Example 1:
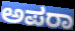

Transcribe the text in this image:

ಅಪರಾ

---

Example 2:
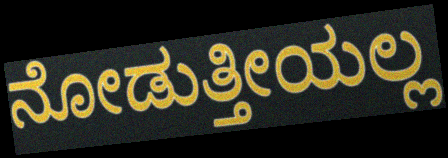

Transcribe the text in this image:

ನೋಡುತ್ತೀಯಲ್ಲ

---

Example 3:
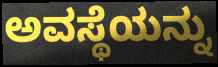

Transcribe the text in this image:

ಅವಸ್ಥೆಯನ್ನು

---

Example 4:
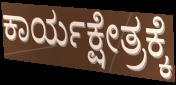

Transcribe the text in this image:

ಕಾರ್ಯಕ್ಷೇತ್ರಕ್ಕೆ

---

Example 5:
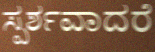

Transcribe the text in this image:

ಸ್ಪರ್ಶವಾದರೆ